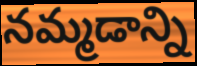
నమ్మడాన్ని